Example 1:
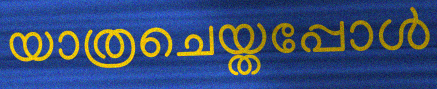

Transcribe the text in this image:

യാത്രചെയ്തപ്പോൾ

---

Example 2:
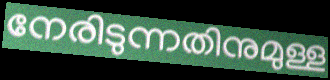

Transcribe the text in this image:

നേരിടുന്നതിനുമുള്ള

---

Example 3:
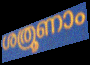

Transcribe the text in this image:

ശത്രൂണാം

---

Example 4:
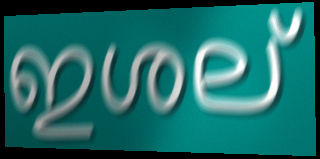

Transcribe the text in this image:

ഇശല്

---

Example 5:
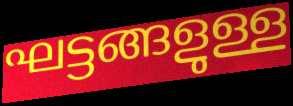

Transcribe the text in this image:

ഘട്ടങ്ങളുള്ള